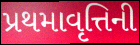
પ્રથમાવૃત્તિની